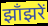
झाँझरें